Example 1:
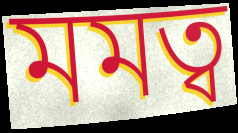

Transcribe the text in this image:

মমত্ব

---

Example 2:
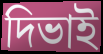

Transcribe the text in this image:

দিভাই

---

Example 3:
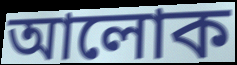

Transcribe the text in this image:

আলোক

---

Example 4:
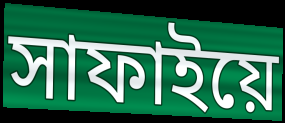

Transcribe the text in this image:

সাফাইয়ে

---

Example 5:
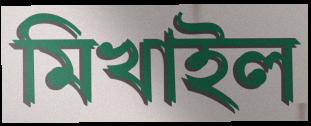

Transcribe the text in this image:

মিখাইল